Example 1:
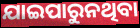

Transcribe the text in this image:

ଯାଇପାରୁନଥିବା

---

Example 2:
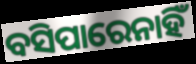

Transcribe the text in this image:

ବସିପାରେନାହିଁ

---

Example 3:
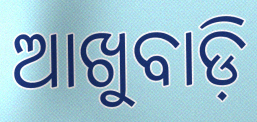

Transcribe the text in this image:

ଆଖୁବାଡ଼ି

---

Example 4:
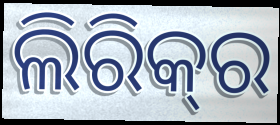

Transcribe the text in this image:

ଲିରିକ୍‍ର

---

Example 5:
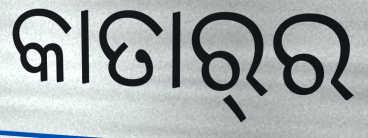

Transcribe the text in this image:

କାତାର୍‌ର